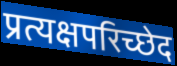
प्रत्यक्षपरिच्छेद